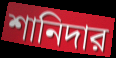
শানিদার